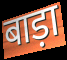
बाड़ा